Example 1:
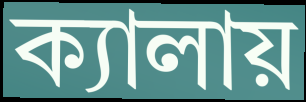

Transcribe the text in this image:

ক্যালায়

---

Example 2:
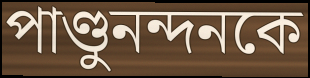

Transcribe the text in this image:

পাণ্ডুনন্দনকে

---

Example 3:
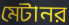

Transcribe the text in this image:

মেটানর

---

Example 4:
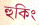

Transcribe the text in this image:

হুকিং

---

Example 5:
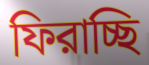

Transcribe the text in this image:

ফিরাচ্ছি